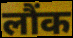
लौंक